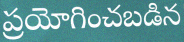
ప్రయోగించబడిన